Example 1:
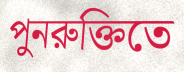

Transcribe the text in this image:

পুনরুক্তিতে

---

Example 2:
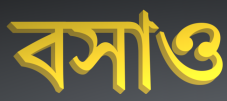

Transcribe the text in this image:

বসাও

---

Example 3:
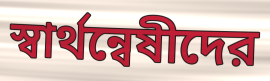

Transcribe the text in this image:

স্বার্থন্বেষীদের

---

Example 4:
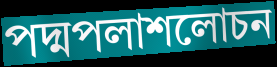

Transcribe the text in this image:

পদ্মপলাশলোচন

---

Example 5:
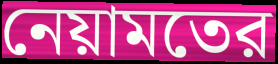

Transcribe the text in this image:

নেয়ামতের